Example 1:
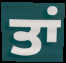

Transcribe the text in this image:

ਤਾਂ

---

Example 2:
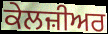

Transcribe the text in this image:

ਕੇਲਜ਼ੀਅਰ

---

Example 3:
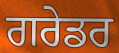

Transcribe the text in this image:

ਗਰੇਡਰ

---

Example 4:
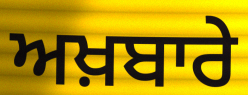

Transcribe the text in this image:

ਅਖ਼ਬਾਰੇ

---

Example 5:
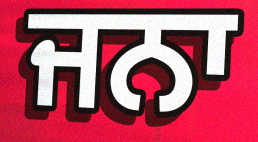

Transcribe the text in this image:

ਜਨਾ